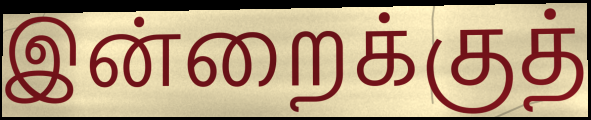
இன்றைக்குத்